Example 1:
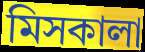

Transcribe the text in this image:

মিসকালা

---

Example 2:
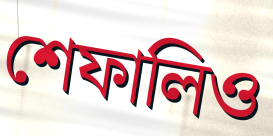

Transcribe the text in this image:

শেফালিও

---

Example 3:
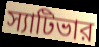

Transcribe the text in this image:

স্যাটিভার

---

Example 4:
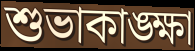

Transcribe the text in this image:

শুভাকাঙ্ক্ষা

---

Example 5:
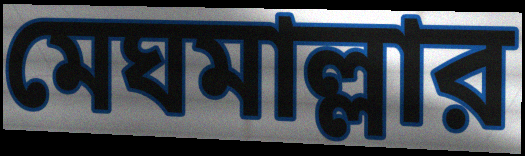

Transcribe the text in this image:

মেঘমাল্লার